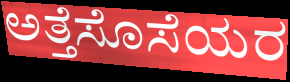
ಅತ್ತೆಸೊಸೆಯರ